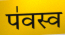
प॑वस्व